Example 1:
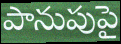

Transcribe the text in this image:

పానుపుపై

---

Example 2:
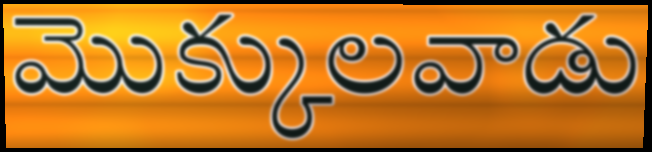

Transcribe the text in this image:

మొక్కులవాడు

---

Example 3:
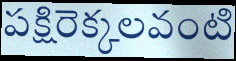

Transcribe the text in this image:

పక్షిరెక్కలవంటి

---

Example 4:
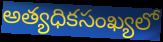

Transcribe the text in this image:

అత్యధికసంఖ్యలో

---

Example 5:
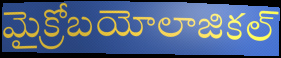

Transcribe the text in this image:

మైక్రోబయోలాజికల్